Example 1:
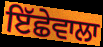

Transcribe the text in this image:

ਇੱਛੇਵਾਲਾ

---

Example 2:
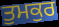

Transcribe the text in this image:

ਤੁਮਕੁਰ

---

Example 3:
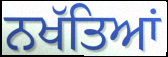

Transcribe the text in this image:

ਨਖੱਤਿਆਂ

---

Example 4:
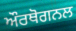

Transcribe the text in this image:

ਔਰਥੋਗਨਲ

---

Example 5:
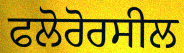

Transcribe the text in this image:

ਫਲੋਰੋਰਸੀਲ